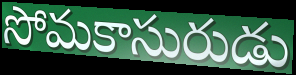
సోమకాసురుడు